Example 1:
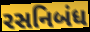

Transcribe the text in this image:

રસનિબંધ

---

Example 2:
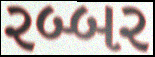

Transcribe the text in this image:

રબ્બર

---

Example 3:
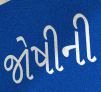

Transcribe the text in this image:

જોષીની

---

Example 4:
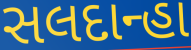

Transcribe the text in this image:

સલદાન્હા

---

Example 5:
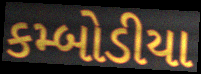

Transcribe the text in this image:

કમ્બોડીયા